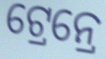
ଟ୍ରେନ୍ରେ